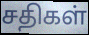
சதிகள்